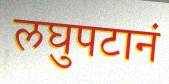
लघुपटानं